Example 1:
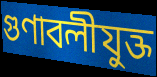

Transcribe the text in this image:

গুণাবলীযুক্ত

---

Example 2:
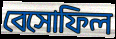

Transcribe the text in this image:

বেসোফিল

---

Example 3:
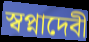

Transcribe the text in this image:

স্বপ্নাদেবী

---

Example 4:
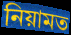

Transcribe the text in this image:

নিয়ামত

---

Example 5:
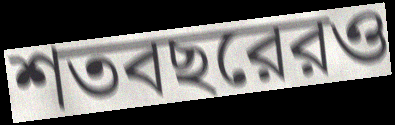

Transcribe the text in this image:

শতবছরেরও